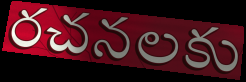
రచనలకు